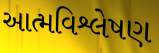
આત્મવિશ્લેષણ